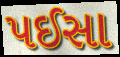
પઈસા